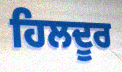
ਹਿਲਦੂਰ